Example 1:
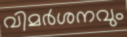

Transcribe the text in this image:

വിമർശനവും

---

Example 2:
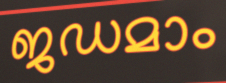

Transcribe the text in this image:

ജഡമാം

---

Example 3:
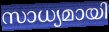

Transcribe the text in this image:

സാധ്യമായി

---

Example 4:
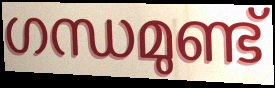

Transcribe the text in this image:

ഗന്ധമുണ്ട്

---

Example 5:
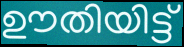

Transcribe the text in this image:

ഊതിയിട്ട്